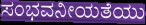
ಸಂಭವನೀಯತೆಯು